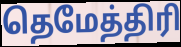
தெமேத்திரி